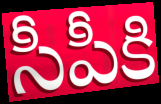
సీపీకి